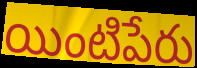
యింటిపేరు